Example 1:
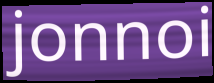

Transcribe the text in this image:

jonnoi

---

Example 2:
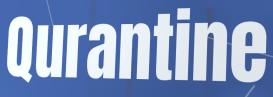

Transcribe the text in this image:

Qurantine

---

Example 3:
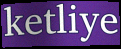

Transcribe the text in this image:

ketliye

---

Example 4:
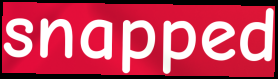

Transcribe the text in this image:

snapped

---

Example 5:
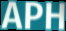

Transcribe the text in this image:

APH